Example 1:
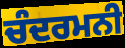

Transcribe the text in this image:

ਚੰਦਰਮਨੀ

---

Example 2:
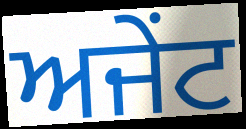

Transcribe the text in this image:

ਅਜੇਂਟ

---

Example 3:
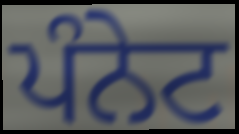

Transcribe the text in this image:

ਪੰਨੇਟ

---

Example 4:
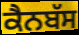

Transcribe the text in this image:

ਕੈਨਬੱਸ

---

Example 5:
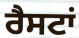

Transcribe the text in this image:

ਰੈਸਟਾਂ